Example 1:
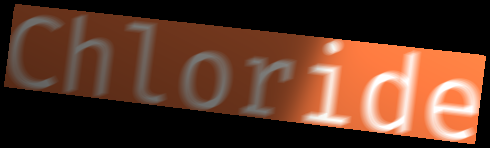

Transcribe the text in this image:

Chloride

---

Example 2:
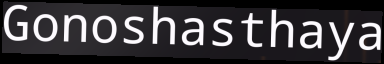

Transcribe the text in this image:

Gonoshasthaya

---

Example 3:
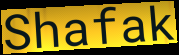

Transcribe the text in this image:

Shafak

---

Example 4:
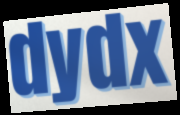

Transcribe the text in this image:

dydx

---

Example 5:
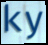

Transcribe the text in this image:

ky